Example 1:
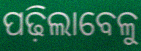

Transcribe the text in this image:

ପଢ଼ିଲାବେଳୁ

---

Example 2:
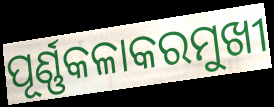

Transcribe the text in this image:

ପୂର୍ଣ୍ଣକଳାକରମୁଖୀ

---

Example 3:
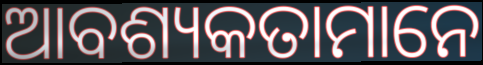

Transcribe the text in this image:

ଆବଶ୍ୟକତାମାନେ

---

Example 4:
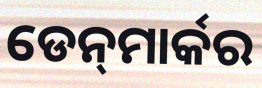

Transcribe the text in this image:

ଡେନ୍‍ମାର୍କର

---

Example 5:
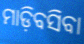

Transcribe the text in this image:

ମାଡ଼ିବସିବା